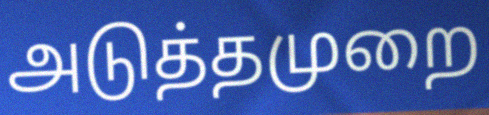
அடுத்தமுறை